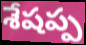
శేషప్ప